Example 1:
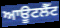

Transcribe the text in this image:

ਆਊਟਲੈੱਟ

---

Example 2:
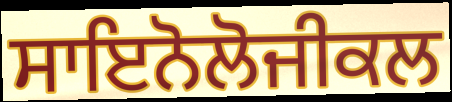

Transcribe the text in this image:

ਸਾਇਨੋਲੋਜੀਕਲ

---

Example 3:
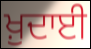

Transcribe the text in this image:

ਖ਼ੁਦਾਈ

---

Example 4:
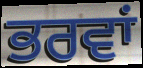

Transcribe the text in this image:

ਭਰਵਾਂ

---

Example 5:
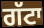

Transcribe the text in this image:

ਗੱਟਾ